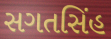
સગતસિંહ